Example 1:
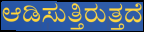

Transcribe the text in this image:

ಆಡಿಸುತ್ತಿರುತ್ತದೆ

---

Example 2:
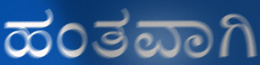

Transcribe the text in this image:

ಹಂತವಾಗಿ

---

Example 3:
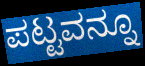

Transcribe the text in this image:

ಪಟ್ಟವನ್ನೂ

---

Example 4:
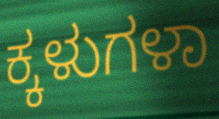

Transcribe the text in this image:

ಕ್ಕಳುಗಳಾ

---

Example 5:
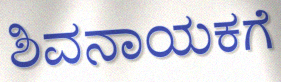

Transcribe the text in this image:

ಶಿವನಾಯಕಗೆ